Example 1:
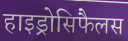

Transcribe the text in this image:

हाइड्रोसिफैलस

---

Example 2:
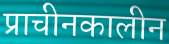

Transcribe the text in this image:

प्राचीनकालीन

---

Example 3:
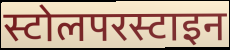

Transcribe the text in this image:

स्टोलपरस्टाइन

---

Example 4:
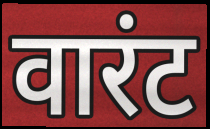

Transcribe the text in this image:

वारंट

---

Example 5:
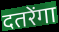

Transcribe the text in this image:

दतरेंगा